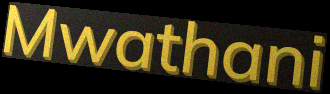
Mwathani